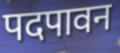
पदपावन